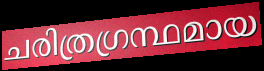
ചരിത്രഗ്രന്ഥമായ